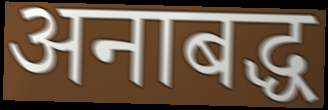
अनाबद्ध